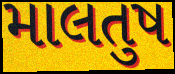
માલતુષ